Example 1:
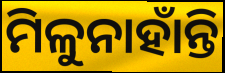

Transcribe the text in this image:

ମିଳୁନାହାଁନ୍ତି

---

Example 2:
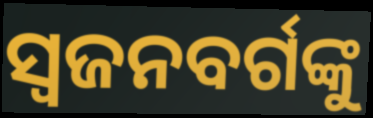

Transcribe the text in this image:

ସ୍ଵଜନବର୍ଗଙ୍କୁ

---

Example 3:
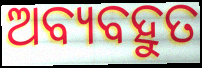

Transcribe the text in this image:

ଅବ୍ୟବହୁତ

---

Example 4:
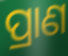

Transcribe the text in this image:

ପ୍ରାଣ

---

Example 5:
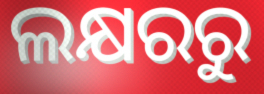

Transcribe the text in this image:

ଲକ୍ଷରରୁ